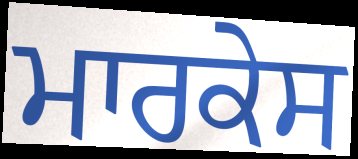
ਮਾਰਕੇਸ